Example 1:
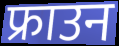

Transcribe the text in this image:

फ्राउन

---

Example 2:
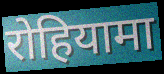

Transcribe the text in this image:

रोहियामा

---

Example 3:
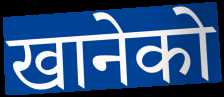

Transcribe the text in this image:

खानेको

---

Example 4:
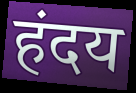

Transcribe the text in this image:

हंदय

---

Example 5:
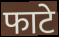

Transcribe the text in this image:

फाटे